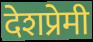
देशप्रेमी